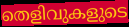
തെളിവുകളുടെ